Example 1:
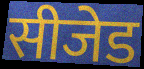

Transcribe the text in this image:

सीजेड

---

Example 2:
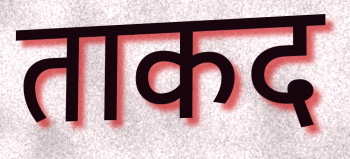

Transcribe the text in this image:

ताकद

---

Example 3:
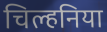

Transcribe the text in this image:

चिल्हनिया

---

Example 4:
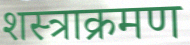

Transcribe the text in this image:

शस्त्राक्रमण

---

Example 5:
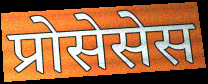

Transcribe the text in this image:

प्रोसेसेस